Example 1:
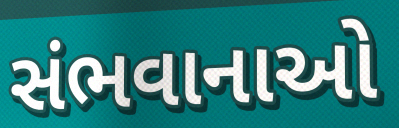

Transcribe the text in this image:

સંભવાનાઓ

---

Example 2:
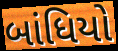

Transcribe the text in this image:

બાંધિયો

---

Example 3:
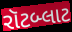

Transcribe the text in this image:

રૉટબ્લાટ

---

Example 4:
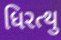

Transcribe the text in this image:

ધિરત્થુ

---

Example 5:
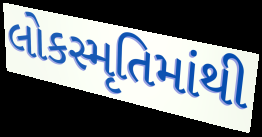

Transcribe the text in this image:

લોકસ્મૃતિમાંથી